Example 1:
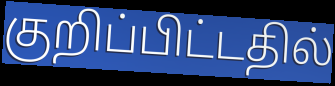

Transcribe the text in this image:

குறிப்பிட்டதில்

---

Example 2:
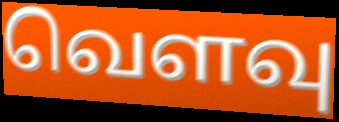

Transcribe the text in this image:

வெளவு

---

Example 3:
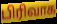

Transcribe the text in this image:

பிரிவாக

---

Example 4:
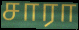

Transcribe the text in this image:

சாரா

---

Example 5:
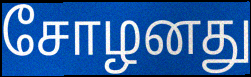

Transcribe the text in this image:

சோழனது